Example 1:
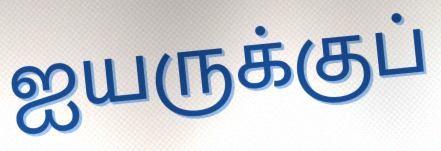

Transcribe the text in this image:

ஐயருக்குப்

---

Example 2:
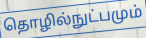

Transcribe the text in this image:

தொழில்நுட்பமும்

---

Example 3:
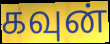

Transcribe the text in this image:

கவுன்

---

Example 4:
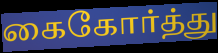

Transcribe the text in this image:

கைகோர்த்து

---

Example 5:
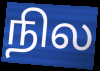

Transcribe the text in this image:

நில